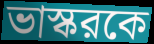
ভাস্করকে